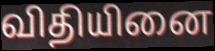
விதியினை